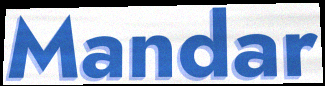
Mandar